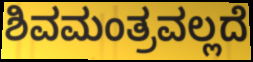
ಶಿವಮಂತ್ರವಲ್ಲದೆ